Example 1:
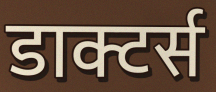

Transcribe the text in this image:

डाक्टर्स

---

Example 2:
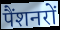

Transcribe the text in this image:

पैंशनरों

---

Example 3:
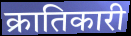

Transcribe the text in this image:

क्रातिकारी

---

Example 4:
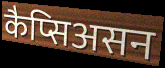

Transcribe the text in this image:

कैप्सिअसन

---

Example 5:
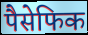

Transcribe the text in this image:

पैसेफिक